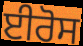
ਈਰੋਸ